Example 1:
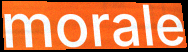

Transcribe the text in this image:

morale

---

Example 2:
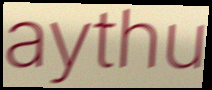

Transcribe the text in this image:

aythu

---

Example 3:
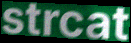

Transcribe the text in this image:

strcat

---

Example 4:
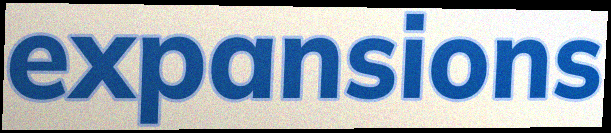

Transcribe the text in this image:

expansions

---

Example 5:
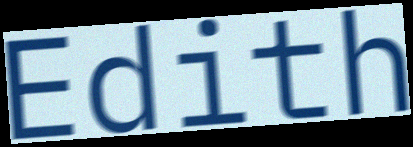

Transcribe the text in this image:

Edith